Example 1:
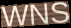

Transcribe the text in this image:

WNS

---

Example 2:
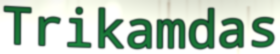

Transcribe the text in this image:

Trikamdas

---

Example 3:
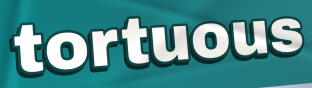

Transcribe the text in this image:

tortuous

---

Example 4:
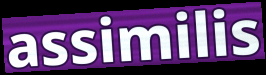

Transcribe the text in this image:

assimilis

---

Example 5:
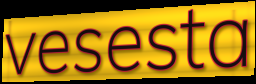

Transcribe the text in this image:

vesesta